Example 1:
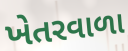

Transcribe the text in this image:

ખેતરવાળા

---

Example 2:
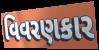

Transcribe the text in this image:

વિવરણકાર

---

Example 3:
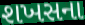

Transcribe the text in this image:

શખસના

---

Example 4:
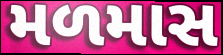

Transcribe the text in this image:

મળમાસ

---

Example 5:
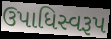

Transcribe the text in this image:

ઉપાધિસ્વરૂપ